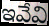
ఇవేవి